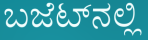
ಬಜೆಟ್‌ನಲ್ಲಿ